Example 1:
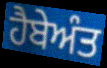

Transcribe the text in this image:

ਹੈਬੇਅੰਤ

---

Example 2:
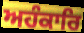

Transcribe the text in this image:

ਅਹੰਕਾਰਿ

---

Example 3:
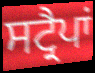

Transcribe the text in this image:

ਸਟ੍ਰੈਪਾਂ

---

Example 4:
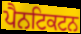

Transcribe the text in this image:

ਪੈਨਟਿਕਟਨ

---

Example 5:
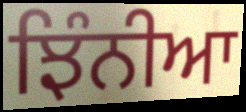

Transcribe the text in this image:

ਝਿੰਨੀਆ